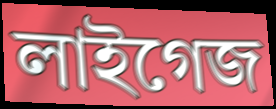
লাইগেজ